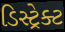
ડિસ્ટ્રેક્ટ